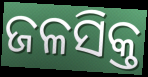
ଜଳସିକ୍ତ